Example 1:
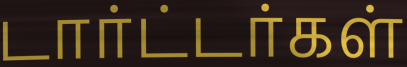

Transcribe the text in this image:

டார்ட்டர்கள்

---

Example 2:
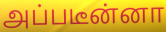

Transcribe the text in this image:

அப்படீன்னா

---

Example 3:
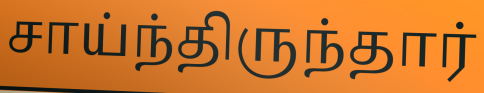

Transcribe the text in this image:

சாய்ந்திருந்தார்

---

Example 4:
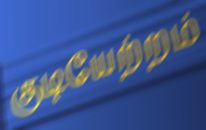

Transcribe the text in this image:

குடியேற்றம்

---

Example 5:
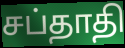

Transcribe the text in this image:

சப்தாதி